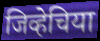
जिव्हेचिया